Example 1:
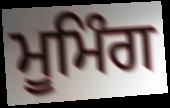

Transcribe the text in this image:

ਮੂਮਿੰਗ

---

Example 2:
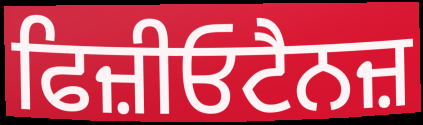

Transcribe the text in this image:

ਫਿਜ਼ੀਓਟੈਨਜ਼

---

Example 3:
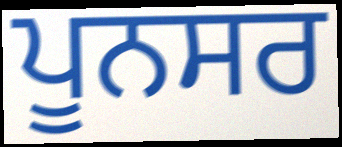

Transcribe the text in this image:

ਪੂਨਸਰ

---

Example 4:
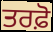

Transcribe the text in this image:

ਤਰਫ਼ੋ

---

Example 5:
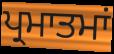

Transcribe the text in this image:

ਪ੍ਰਮਾਤਮਾਂ